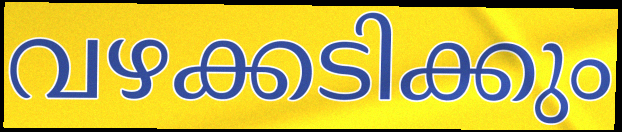
വഴക്കടിക്കും